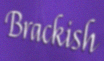
Brackish